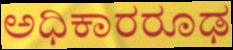
ಅಧಿಕಾರರೂಢ